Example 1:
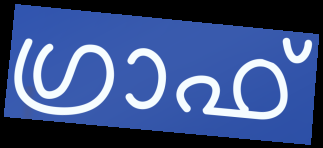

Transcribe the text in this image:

ഗ്രാഫ്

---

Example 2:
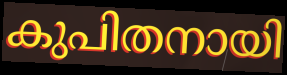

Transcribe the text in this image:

കുപിതനായി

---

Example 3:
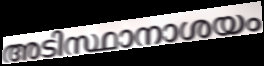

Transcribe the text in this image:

അടിസ്ഥാനാശയം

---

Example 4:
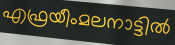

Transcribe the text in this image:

എഫ്രയീംമലനാട്ടിൽ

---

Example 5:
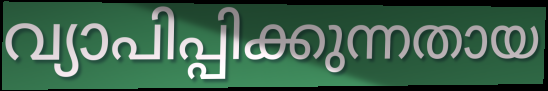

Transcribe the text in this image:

വ്യാപിപ്പിക്കുന്നതായ